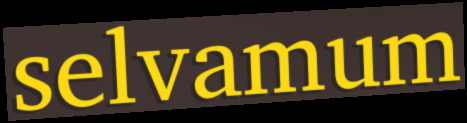
selvamum